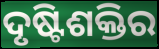
ଦୃଷ୍ଟିଶକ୍ତିର